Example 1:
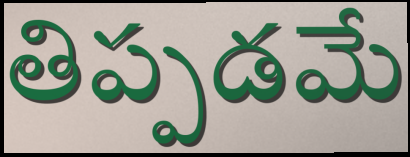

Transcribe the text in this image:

తిప్పడమే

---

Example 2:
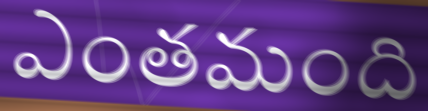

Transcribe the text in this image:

ఎంతమంది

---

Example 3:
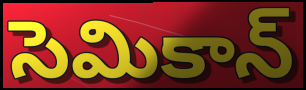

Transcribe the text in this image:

సెమికాన్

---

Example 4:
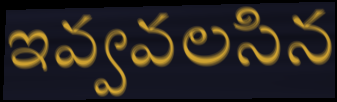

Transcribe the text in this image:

ఇవ్వవలసిన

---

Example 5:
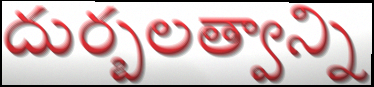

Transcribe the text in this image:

దుర్బలత్వాన్ని